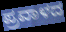
ಪ್ರವಾಳದ